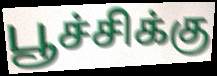
பூச்சிக்கு